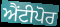
ਐਂਟੀਪੋਰ